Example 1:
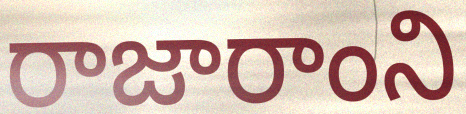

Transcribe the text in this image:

రాజారాంని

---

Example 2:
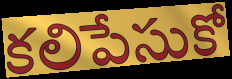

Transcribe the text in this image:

కలిపేసుకో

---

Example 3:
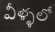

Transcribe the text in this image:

వీళ్ళలో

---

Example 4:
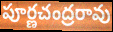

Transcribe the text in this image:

పూర్ణచంద్రరావు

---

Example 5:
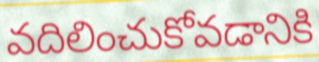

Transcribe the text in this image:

వదిలించుకోవడానికి